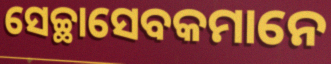
ସେଚ୍ଛାସେବକମାନେ